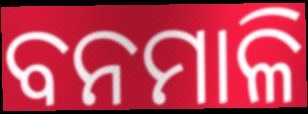
ବନମାଳି